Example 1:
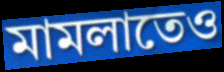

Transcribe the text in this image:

মামলাতেও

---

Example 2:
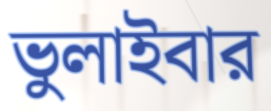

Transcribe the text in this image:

ভুলাইবার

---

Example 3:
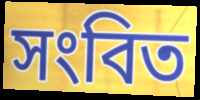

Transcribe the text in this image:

সংবিত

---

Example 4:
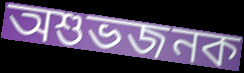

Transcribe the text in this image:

অশুভজনক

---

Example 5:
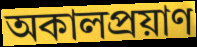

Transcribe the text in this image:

অকালপ্রয়াণ